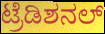
ಟ್ರೆಡಿಶನಲ್